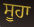
ਸੂਹਾ